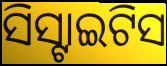
ସିସ୍ଟାଇଟିସ